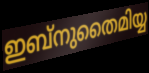
ഇബ്നുതൈമിയ്യ